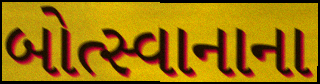
બોત્સ્વાનાના